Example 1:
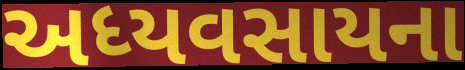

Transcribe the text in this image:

અધ્યવસાયના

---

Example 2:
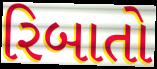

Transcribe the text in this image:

રિબાતો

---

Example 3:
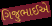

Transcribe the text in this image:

ગિજુભાઈએ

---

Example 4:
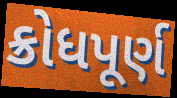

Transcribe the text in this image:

ક્રોધપૂર્ણ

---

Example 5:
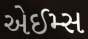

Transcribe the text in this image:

એઈમ્સ